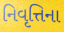
નિવૃત્તિના